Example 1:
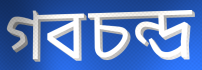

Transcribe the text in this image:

গবচন্দ্র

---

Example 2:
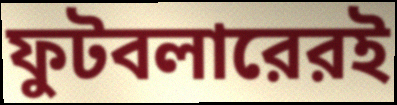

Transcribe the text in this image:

ফুটবলারেরই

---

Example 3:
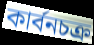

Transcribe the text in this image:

কার্বনচক্র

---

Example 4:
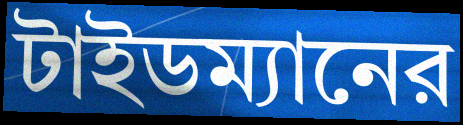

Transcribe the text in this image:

টাইডম্যানের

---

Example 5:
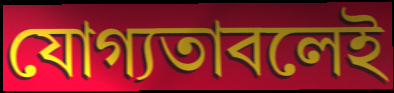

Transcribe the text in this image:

যোগ্যতাবলেই